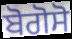
ਬੋਗੋਸੋ